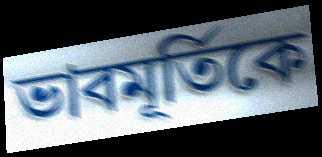
ভাবমূর্তিকে